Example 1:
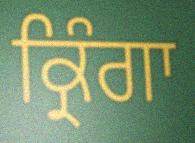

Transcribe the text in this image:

ਕ੍ਰਿੰਗਾ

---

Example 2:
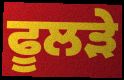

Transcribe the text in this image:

ਫੂਲੜੇ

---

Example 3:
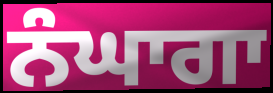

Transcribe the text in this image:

ਨੰਘਾਗਾ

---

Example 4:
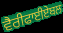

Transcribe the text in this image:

ਵੈਰੀਫਾਈਏਬਲ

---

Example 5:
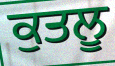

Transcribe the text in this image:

ਕੁਤਲੂ